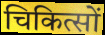
चिकित्सों